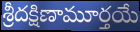
శ్రీదక్షిణామూర్తయే